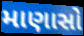
માણાસો